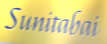
Sunitabai